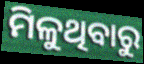
ମିଳୁଥିବାରୁ